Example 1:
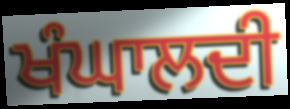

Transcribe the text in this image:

ਖੰਘਾਲਦੀ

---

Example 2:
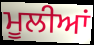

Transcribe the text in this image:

ਮੂਲੀਆਂ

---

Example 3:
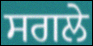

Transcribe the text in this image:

ਸਗਲੇ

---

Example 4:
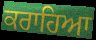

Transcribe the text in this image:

ਕਰਾਹਿਆ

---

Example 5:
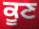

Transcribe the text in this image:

ਕੂਣ